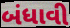
બંધાવી